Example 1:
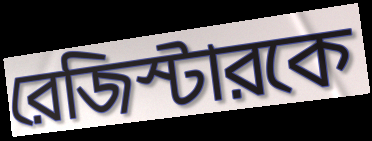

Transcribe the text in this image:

রেজিস্টারকে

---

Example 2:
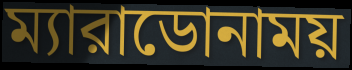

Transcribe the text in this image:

ম্যারাডোনাময়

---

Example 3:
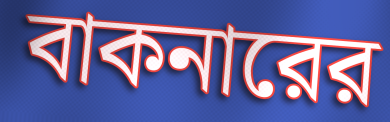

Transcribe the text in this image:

বাকনারের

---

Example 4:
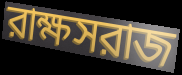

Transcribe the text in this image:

রাক্ষসরাজ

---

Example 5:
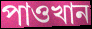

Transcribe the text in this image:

পাওখান